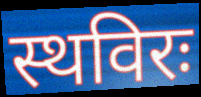
स्थविरः